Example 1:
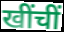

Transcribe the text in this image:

खींचीं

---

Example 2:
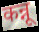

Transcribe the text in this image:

कन्नू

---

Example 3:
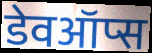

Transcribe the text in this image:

डेवऑप्स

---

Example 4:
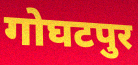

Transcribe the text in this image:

गोघटपुर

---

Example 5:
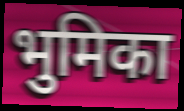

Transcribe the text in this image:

भुमिका